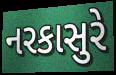
નરકાસુરે